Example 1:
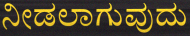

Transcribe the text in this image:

ನೀಡಲಾಗುವುದು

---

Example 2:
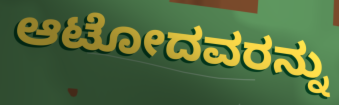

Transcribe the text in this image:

ಆಟೋದವರನ್ನು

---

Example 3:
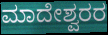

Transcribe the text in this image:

ಮಾದೇಶ್ವರರ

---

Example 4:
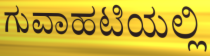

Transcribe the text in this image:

ಗುವಾಹಟಿಯಲ್ಲಿ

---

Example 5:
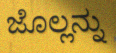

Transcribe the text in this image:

ಜೊಲ್ಲನ್ನು